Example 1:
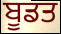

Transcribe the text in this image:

ਬੂਡਤ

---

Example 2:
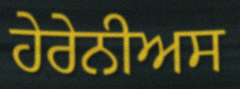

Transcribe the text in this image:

ਹੇਰੇਨੀਅਸ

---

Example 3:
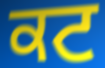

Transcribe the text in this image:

ਕਟ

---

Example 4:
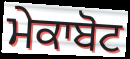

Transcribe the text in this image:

ਮੇਕਾਬੋਟ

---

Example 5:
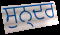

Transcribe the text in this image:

ਸੁਨ੍ਦਰ